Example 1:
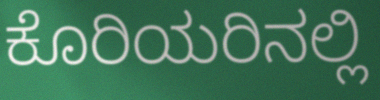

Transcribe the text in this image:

ಕೊರಿಯರಿನಲ್ಲಿ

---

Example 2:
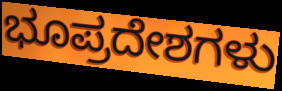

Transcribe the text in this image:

ಭೂಪ್ರದೇಶಗಳು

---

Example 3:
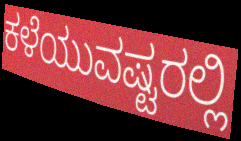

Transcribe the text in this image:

ಕಳೆಯುವಷ್ಟರಲ್ಲಿ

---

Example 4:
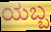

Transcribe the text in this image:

ಯಬ್ಬ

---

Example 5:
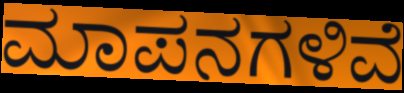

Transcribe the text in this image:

ಮಾಪನಗಳಿವೆ